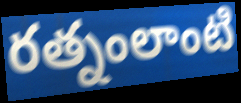
రత్నంలాంటి